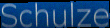
Schulze